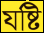
যষ্টি